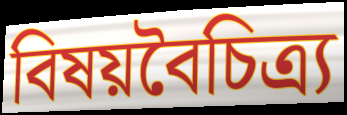
বিষয়বৈচিত্র্য